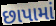
છાપામાં